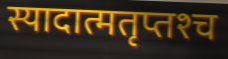
स्यादात्मतृप्तश्च